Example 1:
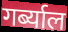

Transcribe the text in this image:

गर्ब्याल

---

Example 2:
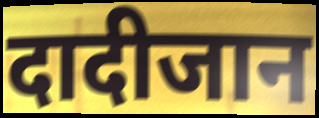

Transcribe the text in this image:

दादीजान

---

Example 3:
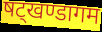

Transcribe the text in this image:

षट्खण्डागम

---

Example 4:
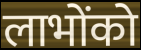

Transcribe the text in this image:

लाभोंको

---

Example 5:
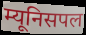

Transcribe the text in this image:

म्यूनिसपल